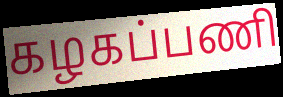
கழகப்பணி